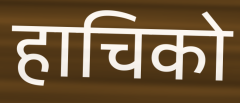
हाचिको